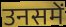
उनसमें